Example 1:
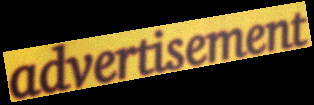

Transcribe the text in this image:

advertisement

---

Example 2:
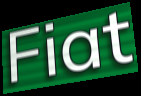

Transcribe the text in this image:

Fiat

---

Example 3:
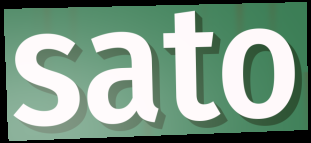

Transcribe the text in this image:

sato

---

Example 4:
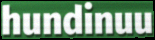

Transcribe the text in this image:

hundinuu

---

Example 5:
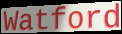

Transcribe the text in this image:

Watford